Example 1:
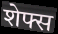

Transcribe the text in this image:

शेफ्स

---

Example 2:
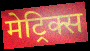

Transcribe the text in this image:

मेट्रिक्स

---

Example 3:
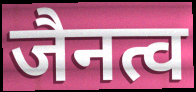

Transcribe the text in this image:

जैनत्व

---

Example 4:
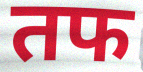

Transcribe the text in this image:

तफ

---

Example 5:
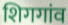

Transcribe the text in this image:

शिगगांव